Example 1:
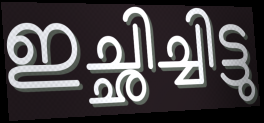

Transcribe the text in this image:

ഇച്ഛിച്ചിട്ടു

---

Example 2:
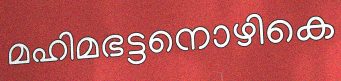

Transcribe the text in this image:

മഹിമഭട്ടനൊഴികെ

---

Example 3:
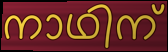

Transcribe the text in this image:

നാഥിന്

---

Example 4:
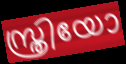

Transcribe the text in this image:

സ്ത്രിയോ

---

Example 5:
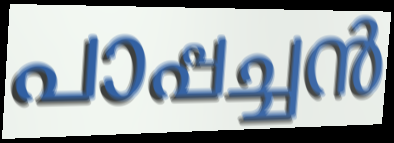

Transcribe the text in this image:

പാപ്പച്ചൻ